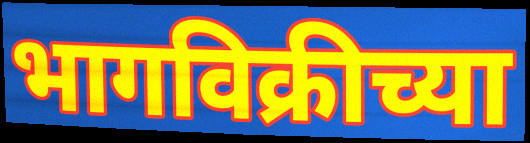
भागविक्रीच्या